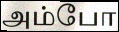
அம்போ